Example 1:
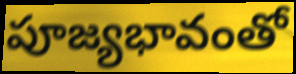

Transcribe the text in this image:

పూజ్యభావంతో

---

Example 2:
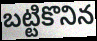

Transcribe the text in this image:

బట్టికొనిన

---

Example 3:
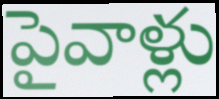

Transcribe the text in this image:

పైవాళ్లు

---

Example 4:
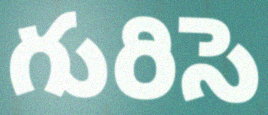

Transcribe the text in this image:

గురిసె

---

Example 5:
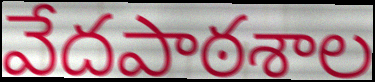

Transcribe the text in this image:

వేదపాఠశాల